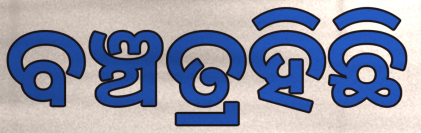
ବଞ୍ଚତ୍ରହିଛି